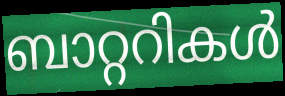
ബാറ്ററികൾ